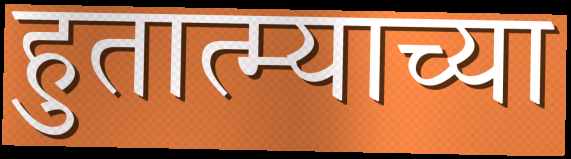
हुतात्म्याच्या